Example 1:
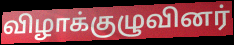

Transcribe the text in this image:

விழாக்குழுவினர்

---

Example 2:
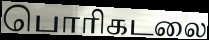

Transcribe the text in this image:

பொரிகடலை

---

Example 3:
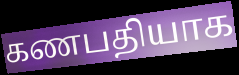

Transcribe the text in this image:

கணபதியாக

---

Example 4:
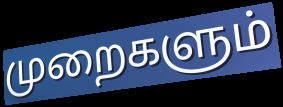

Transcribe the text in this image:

முறைகளும்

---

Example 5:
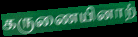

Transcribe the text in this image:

கருணையினாற்